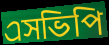
এসভিপি